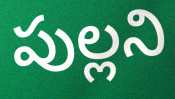
పుల్లని